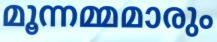
മൂന്നമ്മമാരും